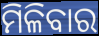
ମିଳିବାର